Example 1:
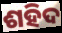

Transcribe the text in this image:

ଶହିଦ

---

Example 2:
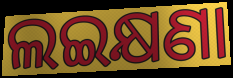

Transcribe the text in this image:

ଲଇକ୍ଷଣା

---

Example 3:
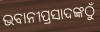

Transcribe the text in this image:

ଭବାନୀପ୍ରସାଦଙ୍କଠୁଁ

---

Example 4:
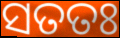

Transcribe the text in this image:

ସତତଃ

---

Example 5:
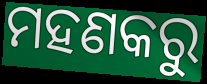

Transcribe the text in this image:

ମହଣକରୁ